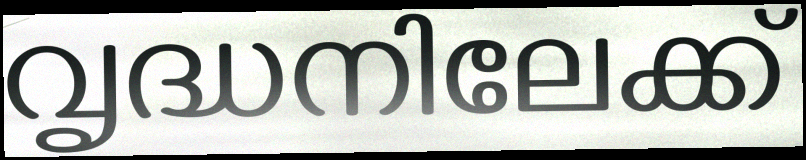
വൃദ്ധനിലേക്ക്